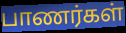
பாணர்கள்